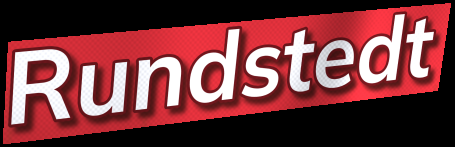
Rundstedt